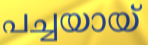
പച്ചയായ്